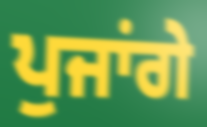
ਪੁਜਾਂਗੇ